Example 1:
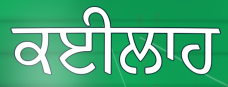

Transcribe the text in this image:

ਕਈਲਾਹ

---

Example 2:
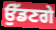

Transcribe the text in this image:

ਉੱਡਣਗੇ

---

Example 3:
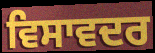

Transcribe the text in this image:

ਵਿਸਾਵਦਰ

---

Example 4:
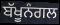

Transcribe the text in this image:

ਬੱਖੂਨੰਗਲ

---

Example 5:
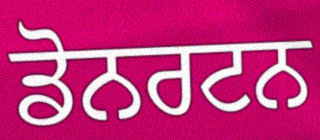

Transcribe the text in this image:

ਡੋਨਰਟਨ